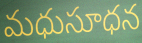
మధుసూధన